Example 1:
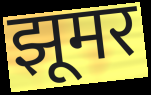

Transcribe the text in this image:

झूमर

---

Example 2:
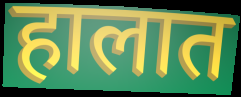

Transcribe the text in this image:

हालात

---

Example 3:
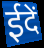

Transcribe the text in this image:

ईदें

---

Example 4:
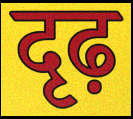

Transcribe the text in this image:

दृढ़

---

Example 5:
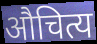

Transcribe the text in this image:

औचित्य